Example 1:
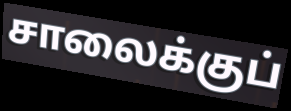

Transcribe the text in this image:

சாலைக்குப்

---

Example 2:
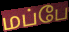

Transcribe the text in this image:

மப்பே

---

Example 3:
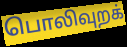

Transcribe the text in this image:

பொலிவுறக்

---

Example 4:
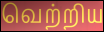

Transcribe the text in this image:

வெற்றிய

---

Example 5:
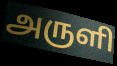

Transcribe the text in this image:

அருளி